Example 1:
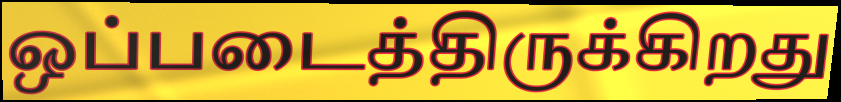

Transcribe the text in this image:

ஒப்படைத்திருக்கிறது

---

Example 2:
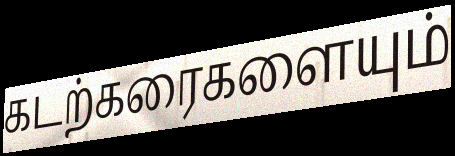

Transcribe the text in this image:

கடற்கரைகளையும்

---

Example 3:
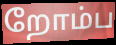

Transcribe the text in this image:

றோம்ப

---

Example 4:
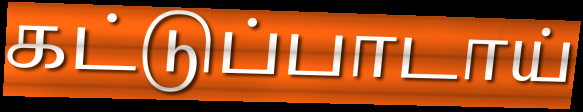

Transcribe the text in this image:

கட்டுப்பாடாய்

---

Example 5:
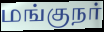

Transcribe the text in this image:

மங்குநர்